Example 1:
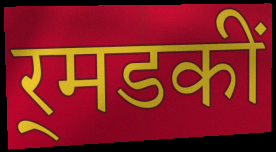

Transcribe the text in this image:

र्मडकीं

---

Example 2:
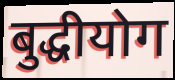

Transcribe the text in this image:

बुद्धीयोग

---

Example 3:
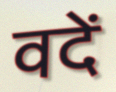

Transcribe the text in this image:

वदें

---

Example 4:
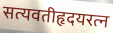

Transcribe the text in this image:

सत्यवतीहृदयरत्न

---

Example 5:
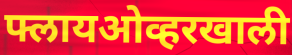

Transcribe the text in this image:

फ्लायओव्हरखाली